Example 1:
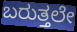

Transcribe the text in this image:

ಬರುತ್ತಲೇ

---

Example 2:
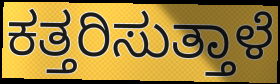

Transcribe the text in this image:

ಕತ್ತರಿಸುತ್ತಾಳೆ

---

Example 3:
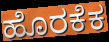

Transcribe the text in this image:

ಹೊರಕೆಕ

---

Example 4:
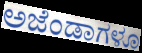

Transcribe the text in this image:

ಅಜೆಂಡಾಗಳೂ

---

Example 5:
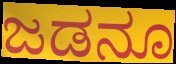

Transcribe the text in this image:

ಜಡನೂ